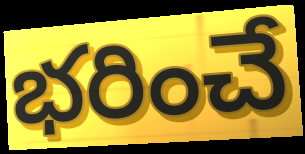
భరించే